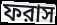
ফরাস